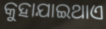
କୁହାଯାଇଥାଏ